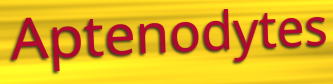
Aptenodytes